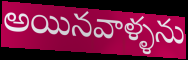
అయినవాళ్ళను